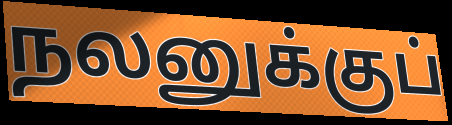
நலனுக்குப்